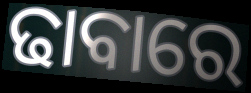
ଢାବାରେ